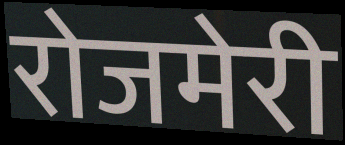
रोजमेरी